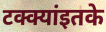
टक्क्यांइतके